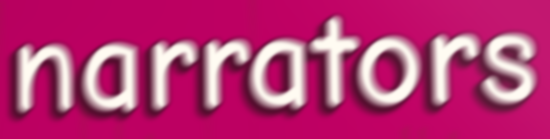
narrators